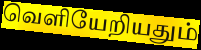
வெளியேறியதும்